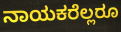
ನಾಯಕರೆಲ್ಲರೂ